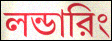
লন্ডারিং